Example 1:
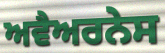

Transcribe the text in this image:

ਅਵੈਅਰਨੇਸ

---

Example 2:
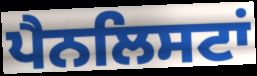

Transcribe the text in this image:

ਪੈਨਲਿਸਟਾਂ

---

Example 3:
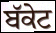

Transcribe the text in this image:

ਬੱਕੇਟ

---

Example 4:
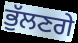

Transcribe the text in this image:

ਭੁੱਲਣਗੇ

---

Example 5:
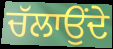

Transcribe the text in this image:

ਚੱਲਾਉਂਦੇ